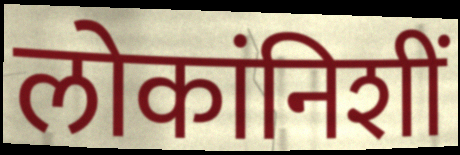
लोकांनिशीं